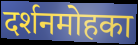
दर्शनमोहका